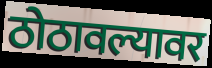
ठोठावल्यावर